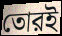
তোরই